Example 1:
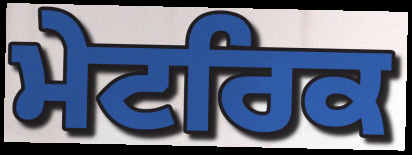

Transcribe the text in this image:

ਮੇਟਰਿਕ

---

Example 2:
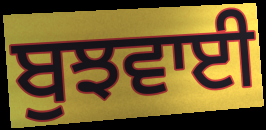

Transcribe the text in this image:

ਬੁਝਵਾਈ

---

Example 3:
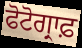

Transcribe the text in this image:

ਫੋਟੋਗ੍ਰਾਫ਼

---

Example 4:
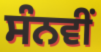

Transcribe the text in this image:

ਸੰਨਵੀਂ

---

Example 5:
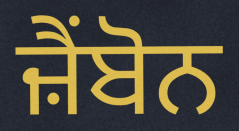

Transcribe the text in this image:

ਜ਼ੈਂਬੋਨ